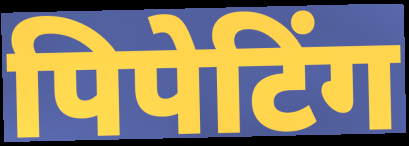
पिपेटिंग